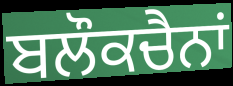
ਬਲੌਕਚੈਨਾਂ